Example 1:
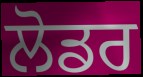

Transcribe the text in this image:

ਲੋਡਰ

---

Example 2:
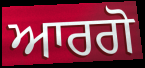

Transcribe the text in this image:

ਆਰਗੋ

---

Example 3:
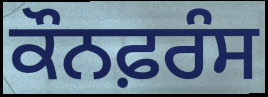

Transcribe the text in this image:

ਕੌਨਫ਼ਰੰਸ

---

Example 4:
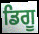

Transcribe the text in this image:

ਡਿਗੂ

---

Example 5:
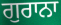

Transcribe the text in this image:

ਗੁਰਾਨਾ